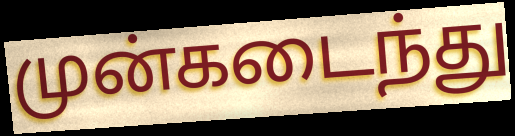
முன்கடைந்து